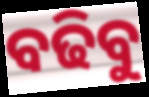
ବଢିବୁ